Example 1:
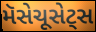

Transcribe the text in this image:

મૅસેચૂસેટ્સ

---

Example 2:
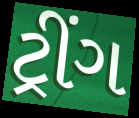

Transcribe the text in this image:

ટ્રીંગ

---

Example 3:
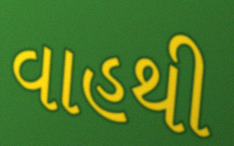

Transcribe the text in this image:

વાહથી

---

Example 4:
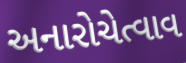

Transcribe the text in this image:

અનારોચેત્વાવ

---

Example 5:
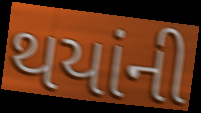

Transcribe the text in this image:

થયાંની